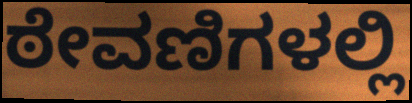
ಠೇವಣಿಗಳಲ್ಲಿ